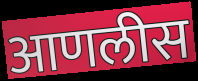
आणलीस